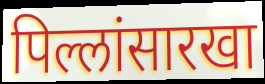
पिल्लांसारखा